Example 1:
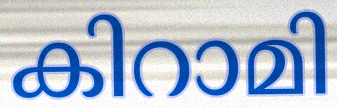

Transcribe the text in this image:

കിറാമി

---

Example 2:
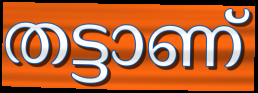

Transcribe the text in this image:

തട്ടാണ്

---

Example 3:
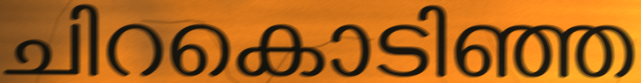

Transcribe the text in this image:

ചിറകൊടിഞ്ഞ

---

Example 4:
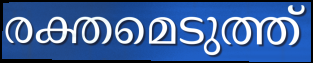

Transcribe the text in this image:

രക്തമെടുത്ത്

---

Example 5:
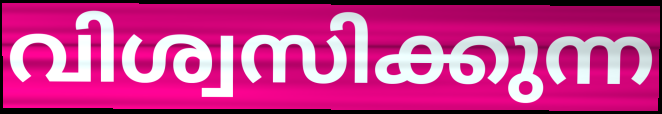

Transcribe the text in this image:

വിശ്വസിക്കുന്ന